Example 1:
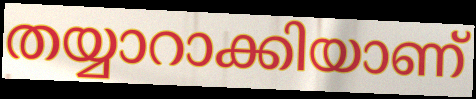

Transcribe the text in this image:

തയ്യാറാക്കിയാണ്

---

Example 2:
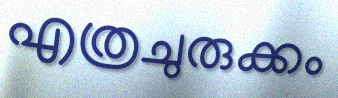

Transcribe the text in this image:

എത്രചുരുക്കം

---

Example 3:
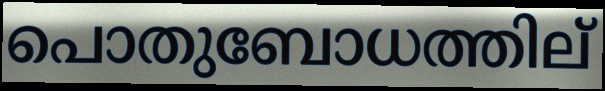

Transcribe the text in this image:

പൊതുബോധത്തില്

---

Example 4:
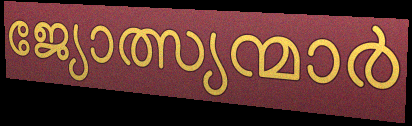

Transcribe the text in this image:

ജ്യോത്സ്യന്മാർ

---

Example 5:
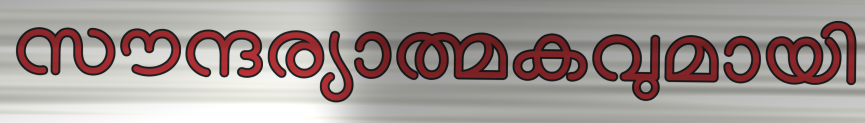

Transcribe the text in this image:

സൗന്ദര്യാത്മകവുമായി